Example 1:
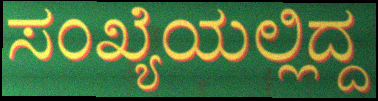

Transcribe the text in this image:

ಸಂಖ್ಯೆಯಲ್ಲಿದ್ದ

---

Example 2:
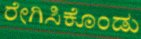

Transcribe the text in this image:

ರೇಗಿಸಿಕೊಂಡು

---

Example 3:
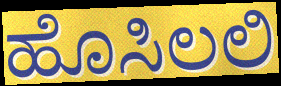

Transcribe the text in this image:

ಹೊಸಿಲಲಿ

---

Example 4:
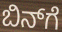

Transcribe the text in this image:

ಬಿನ್‌ಗೆ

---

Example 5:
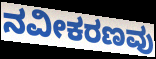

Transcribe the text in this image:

ನವೀಕರಣವು